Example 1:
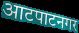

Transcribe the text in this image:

आटपाटनगर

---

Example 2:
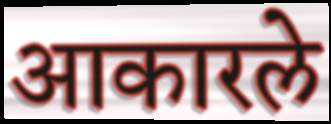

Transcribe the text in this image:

आकारले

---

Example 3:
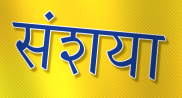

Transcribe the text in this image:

संशया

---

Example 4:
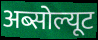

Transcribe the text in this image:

अब्सोल्यूट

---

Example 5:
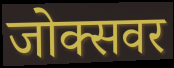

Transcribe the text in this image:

जोक्सवर